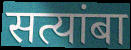
सत्यांबा